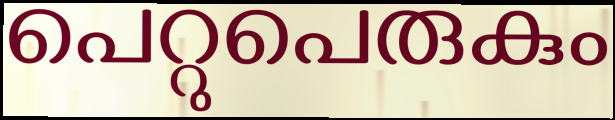
പെറ്റുപെരുകും